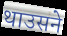
थाउसने